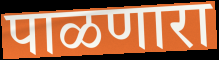
पाळणारा